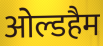
ओल्डहैम